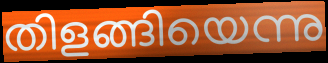
തിളങ്ങിയെന്നു